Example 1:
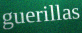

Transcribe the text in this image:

guerillas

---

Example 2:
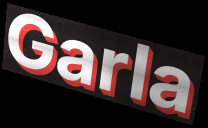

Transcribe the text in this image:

Garla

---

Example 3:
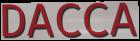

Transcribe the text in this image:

DACCA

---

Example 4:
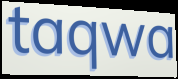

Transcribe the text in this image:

taqwa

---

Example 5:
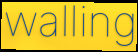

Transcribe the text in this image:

walling